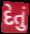
દેતું